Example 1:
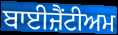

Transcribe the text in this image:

ਬਾਈਜ਼ੈਂਟੀਅਮ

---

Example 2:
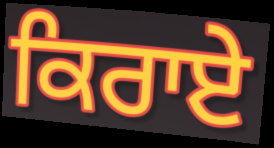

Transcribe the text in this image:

ਕਿਰਾਏ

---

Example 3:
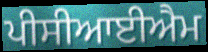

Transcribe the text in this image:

ਪੀਸੀਆਈਐਮ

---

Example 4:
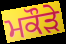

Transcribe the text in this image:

ਮਕੌੜੇ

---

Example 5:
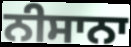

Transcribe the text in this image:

ਨੀਸਾਨਾ